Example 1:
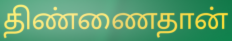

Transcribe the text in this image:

திண்ணைதான்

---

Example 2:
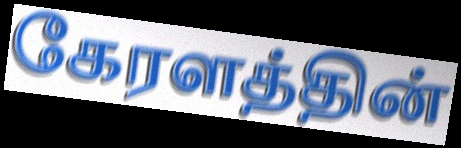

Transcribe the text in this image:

கேரளத்தின்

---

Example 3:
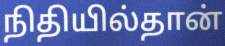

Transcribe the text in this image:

நிதியில்தான்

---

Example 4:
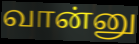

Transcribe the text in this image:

வான்னு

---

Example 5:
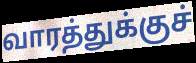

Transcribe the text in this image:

வாரத்துக்குச்